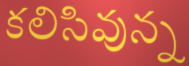
కలిసివున్న